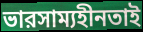
ভারসাম্যহীনতাই